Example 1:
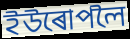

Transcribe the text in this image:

ইউৰোপলৈ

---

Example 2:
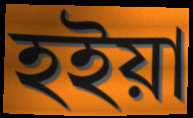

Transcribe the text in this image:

হইয়া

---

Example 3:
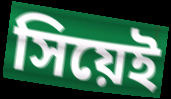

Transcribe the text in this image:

সিয়েই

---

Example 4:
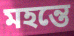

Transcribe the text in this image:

মহন্তে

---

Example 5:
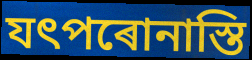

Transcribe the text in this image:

যৎপৰোনাস্তি